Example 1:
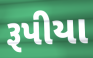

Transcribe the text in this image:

રૂપીયા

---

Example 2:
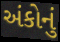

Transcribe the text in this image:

અંકોનું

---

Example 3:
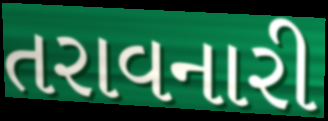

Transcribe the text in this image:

તરાવનારી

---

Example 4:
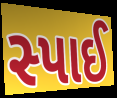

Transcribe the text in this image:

સ્પાઈ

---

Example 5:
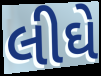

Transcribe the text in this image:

લીઘે